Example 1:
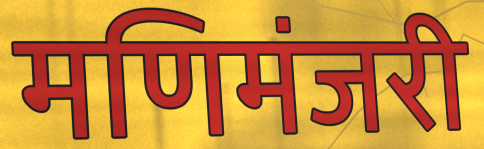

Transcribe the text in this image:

मणिमंजरी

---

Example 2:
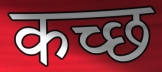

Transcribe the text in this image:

कच्‍छ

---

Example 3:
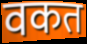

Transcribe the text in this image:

वकत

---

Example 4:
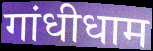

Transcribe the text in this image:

गांधीधाम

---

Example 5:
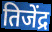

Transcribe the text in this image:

तिजेंद्र